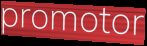
promotor